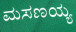
ಮಸಣಯ್ಯ